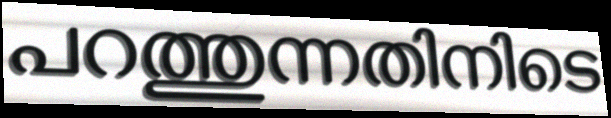
പറത്തുന്നതിനിടെ